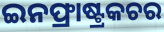
ଇନଫ୍ରାଷ୍ଟ୍ରକଚର